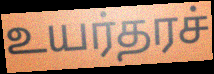
உயர்தரச்